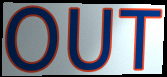
OUT